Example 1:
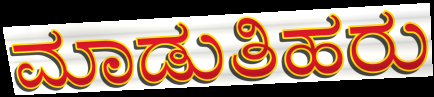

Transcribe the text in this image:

ಮಾಡುತಿಹರು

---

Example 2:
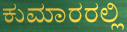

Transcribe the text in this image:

ಕುಮಾರರಲ್ಲಿ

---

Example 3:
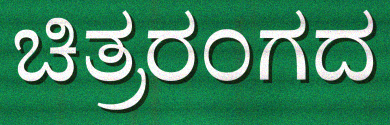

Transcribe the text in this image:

ಚಿತ್ರರಂಗದ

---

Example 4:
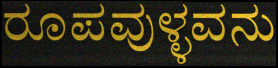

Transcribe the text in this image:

ರೂಪವುಳ್ಳವನು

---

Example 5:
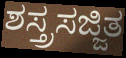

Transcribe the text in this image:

ಶಸ್ತ್ರಸಜ್ಜಿತ